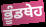
ਭੂੰਡਥੇਹ